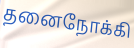
தனைநோக்கி